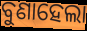
ବୁଣାହେଲା